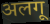
अलगू